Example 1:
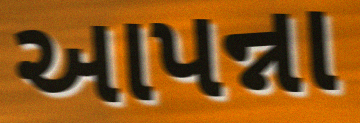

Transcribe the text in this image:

આપન્ના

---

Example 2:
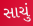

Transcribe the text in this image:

સાચું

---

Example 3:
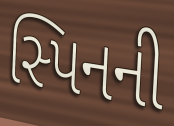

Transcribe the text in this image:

સ્પિનની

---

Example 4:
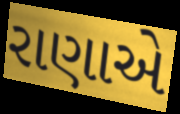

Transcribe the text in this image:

રાણાએ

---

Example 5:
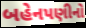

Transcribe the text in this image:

બહેનપણીનો